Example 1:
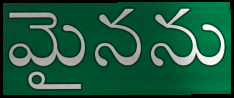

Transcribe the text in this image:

మైనను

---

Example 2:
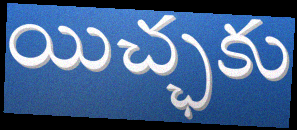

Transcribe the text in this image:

యిచ్ఛకు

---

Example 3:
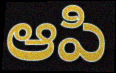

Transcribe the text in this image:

ఆపి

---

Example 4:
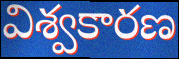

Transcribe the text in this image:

విశ్వకారణ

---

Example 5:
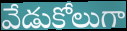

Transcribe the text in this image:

వేడుకోలుగా